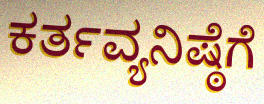
ಕರ್ತವ್ಯನಿಷ್ಠೆಗೆ